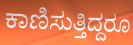
ಕಾಣಿಸುತ್ತಿದ್ದರೂ